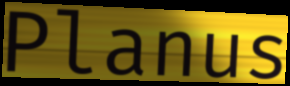
Planus